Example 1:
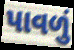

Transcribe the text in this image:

પાવળું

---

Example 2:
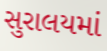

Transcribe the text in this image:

સુરાલયમાં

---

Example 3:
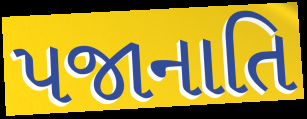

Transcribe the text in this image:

પજાનાતિ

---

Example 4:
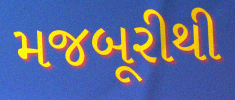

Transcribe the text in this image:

મજબૂરીથી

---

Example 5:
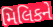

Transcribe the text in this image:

મિલિકને